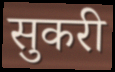
सुकरी